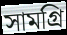
সামগ্রি